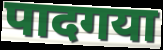
पादगया